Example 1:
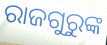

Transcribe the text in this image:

ରାଜଗୁରୁଙ୍କ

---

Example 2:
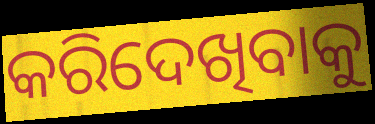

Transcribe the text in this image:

କରିଦେଖିବାକୁ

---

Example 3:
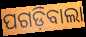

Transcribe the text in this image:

ପଗଡ଼ିବାଲା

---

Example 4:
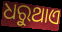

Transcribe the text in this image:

ଧରୁଥାଏ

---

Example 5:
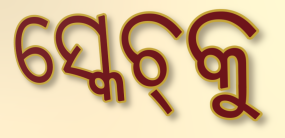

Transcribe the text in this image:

ସ୍କେଚ୍‌କୁ